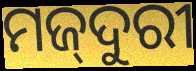
ମଜ୍‌ଦୁରୀ